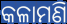
କଳାମଣି